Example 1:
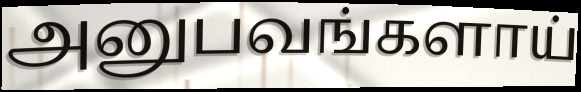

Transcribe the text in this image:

அனுபவங்களாய்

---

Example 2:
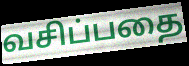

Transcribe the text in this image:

வசிப்பதை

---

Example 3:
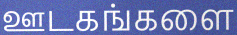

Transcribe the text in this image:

ஊடகங்களை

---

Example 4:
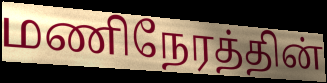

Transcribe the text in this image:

மணிநேரத்தின்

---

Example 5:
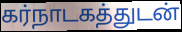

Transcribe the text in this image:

கர்நாடகத்துடன்